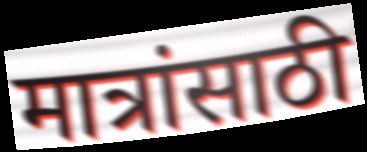
मात्रांसाठी